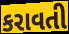
કરાવતી